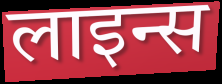
लाइन्स